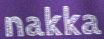
nakka